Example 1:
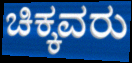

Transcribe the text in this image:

ಚಿಕ್ಕವರು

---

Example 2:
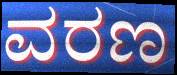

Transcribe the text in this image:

ವರಣ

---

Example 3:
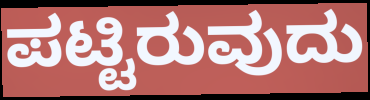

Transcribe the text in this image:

ಪಟ್ಟಿರುವುದು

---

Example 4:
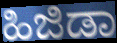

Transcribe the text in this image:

ಹಿಜಿಡಾ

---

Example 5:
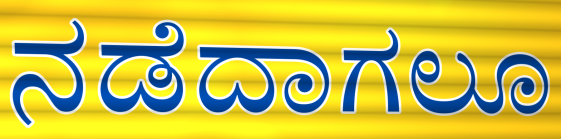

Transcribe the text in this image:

ನಡೆದಾಗಲೂ